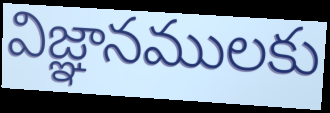
విజ్ఞానములకు